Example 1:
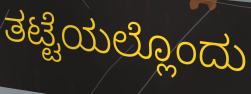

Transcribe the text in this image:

ತಟ್ಟೆಯಲ್ಲೊಂದು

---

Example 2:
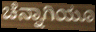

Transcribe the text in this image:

ಚೆನ್ನಾಗಿಯೂ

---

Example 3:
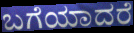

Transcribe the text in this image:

ಬಗೆಯಾದರೆ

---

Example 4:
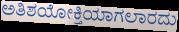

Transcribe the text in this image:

ಅತಿಶಯೋಕ್ತಿಯಾಗಲಾರದು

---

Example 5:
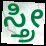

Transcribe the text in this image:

ಸ್ತ್ರೀ